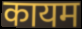
कायम